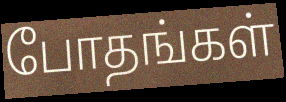
போதங்கள்